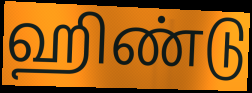
ஹிண்டு